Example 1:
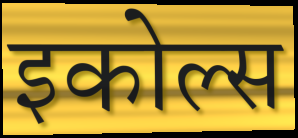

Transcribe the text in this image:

इकोल्स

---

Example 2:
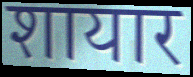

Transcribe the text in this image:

शायार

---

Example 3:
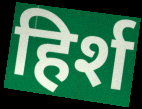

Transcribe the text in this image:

हिर्श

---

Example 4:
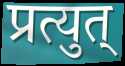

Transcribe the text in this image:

प्रत्युत्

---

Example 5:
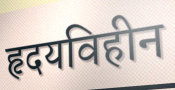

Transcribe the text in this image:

हृदयविहीन